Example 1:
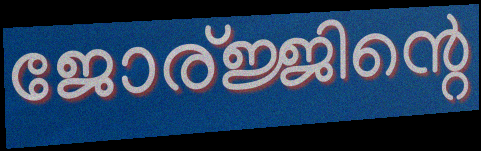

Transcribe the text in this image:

ജോര്ജ്ജിന്റെ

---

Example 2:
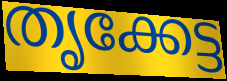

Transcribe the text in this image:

തൃക്കേട്ട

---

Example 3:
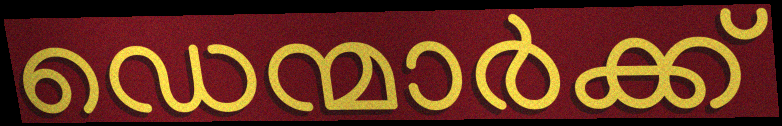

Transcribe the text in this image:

ഡെന്മാർക്ക്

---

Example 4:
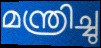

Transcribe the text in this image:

മന്ത്രിച്ചു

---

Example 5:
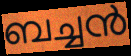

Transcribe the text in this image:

ബച്ചൻ